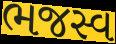
ભજસ્વ